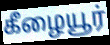
கீழையூர்